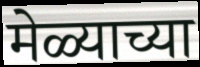
मेळ्याच्या